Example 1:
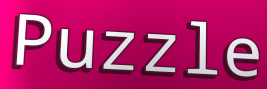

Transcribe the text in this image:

Puzzle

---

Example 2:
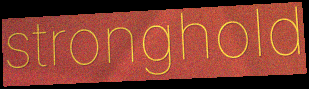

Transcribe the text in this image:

stronghold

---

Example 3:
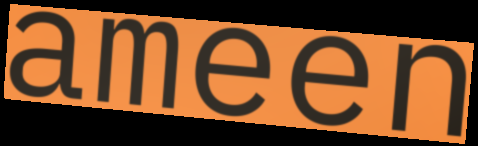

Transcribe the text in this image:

ameen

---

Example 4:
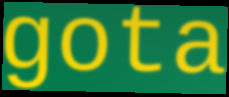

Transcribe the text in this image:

gota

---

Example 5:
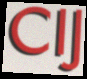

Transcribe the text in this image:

CIJ